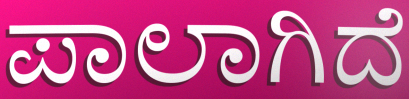
ಪಾಲಾಗಿದೆ